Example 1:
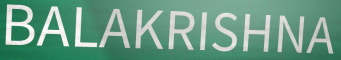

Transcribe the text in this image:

BALAKRISHNA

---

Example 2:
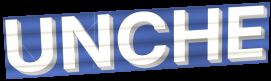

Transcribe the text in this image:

UNCHE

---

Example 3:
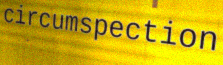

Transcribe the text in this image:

circumspection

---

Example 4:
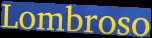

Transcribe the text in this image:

Lombroso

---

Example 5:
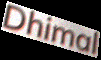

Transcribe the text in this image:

Dhimal